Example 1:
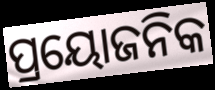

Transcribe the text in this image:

ପ୍ରୟୋଜନିକ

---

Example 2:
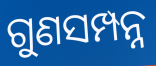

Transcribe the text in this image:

ଗୁଣସମ୍ପନ୍ନ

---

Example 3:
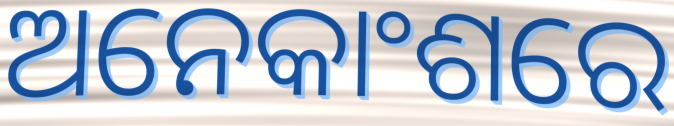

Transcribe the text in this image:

ଅନେକାଂଶରେ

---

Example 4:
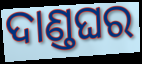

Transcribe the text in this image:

ଦାଣ୍ଡଘର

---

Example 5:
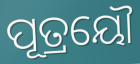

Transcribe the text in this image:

ପୂତ୍ରୟୌ